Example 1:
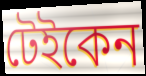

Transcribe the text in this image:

টেইকেন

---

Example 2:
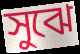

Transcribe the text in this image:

সুঝে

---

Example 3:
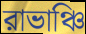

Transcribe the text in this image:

রাভাঞ্চি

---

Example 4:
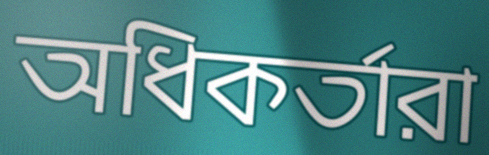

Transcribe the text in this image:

অধিকর্তারা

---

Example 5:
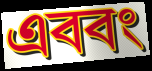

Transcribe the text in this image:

এববং